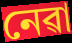
নেৱা